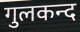
गुलकन्द